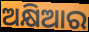
ଅକ୍ଷିଆର